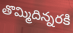
తొమ్మిదిన్నరకి